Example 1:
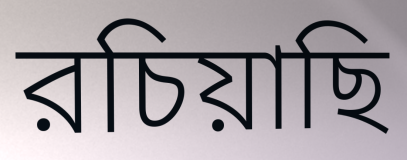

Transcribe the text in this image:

রচিয়াছি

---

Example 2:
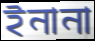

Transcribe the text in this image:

ইনানা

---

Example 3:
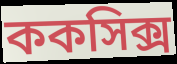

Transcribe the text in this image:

ককসিক্স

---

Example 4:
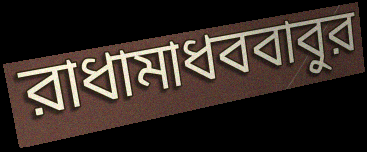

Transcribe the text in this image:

রাধামাধববাবুর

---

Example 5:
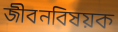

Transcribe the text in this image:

জীবনবিষয়ক